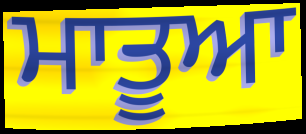
ਮਾਤੂਆ